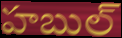
హబుల్